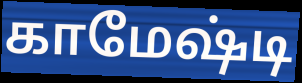
காமேஷ்டி